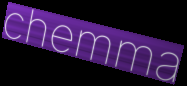
chemma